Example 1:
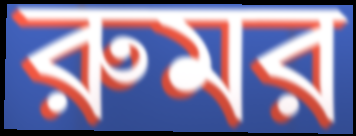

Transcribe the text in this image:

রুমর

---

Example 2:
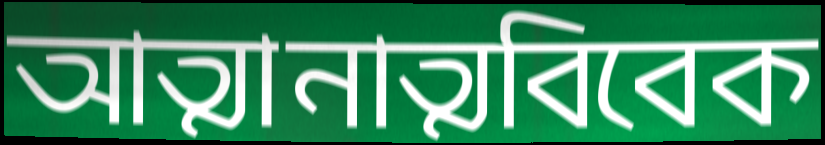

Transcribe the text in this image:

আত্মানাত্মবিবেক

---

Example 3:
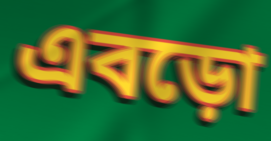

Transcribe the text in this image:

এবড়ো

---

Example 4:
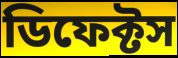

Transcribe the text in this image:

ডিফেক্টস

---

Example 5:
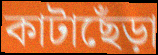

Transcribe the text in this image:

কাটাছেঁড়া